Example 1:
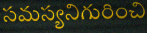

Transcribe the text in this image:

సమస్యనిగురించి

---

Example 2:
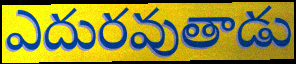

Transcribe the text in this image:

ఎదురవుతాడు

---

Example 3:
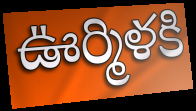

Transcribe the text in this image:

ఊర్మిళకి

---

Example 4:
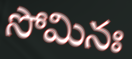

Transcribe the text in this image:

సోమినః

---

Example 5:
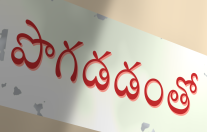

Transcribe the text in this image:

పొగడడంతో